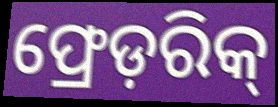
ଫ୍ରେଡ଼ରିକ୍